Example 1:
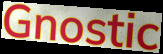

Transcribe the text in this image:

Gnostic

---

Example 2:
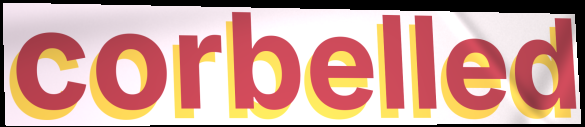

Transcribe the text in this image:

corbelled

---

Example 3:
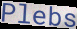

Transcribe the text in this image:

Plebs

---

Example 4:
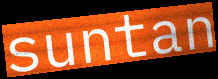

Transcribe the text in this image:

suntan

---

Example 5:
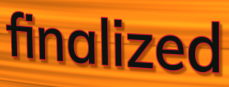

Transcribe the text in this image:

finalized